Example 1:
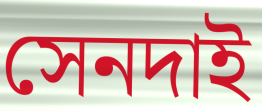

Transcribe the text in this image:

সেনদাই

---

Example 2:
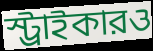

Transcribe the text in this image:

স্ট্রাইকারও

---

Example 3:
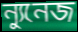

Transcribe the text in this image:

ন্যুনেজ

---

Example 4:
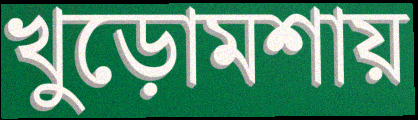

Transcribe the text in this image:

খুড়োমশায়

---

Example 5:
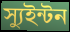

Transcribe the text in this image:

স্যুইন্টন